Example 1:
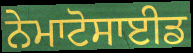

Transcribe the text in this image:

ਨੇਮਾਟੋਸਾਈਡ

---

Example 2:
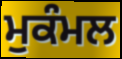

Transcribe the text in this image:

ਮੁਕੰਮਲ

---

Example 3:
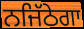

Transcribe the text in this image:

ਨਜਿੱਠੇਗਾ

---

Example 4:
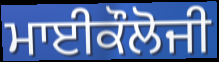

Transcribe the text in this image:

ਮਾਈਕੌਲੋਜੀ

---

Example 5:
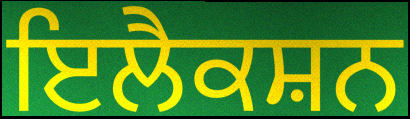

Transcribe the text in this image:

ਇਲੈਕਸ਼ਨ